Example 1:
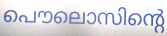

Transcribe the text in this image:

പൌലൊസിന്റെ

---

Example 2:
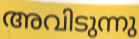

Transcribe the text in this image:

അവിടുന്നു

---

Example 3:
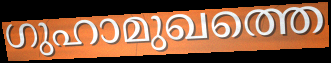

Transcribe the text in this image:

ഗുഹാമുഖത്തെ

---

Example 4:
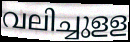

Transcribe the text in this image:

വലിച്ചുളള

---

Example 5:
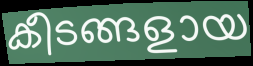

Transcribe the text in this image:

കീടങ്ങളായ